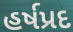
હર્ષપ્રદ